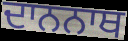
ਦਾਨਨਾਥ